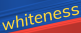
whiteness